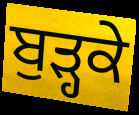
ਬੁੜ੍ਹਕੇ